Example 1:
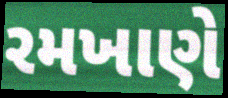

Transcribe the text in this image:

રમખાણે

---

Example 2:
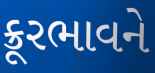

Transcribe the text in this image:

ક્રૂરભાવને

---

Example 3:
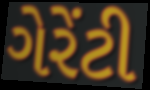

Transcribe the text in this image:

ગેરેંટી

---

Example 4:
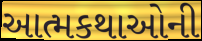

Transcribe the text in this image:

આત્મકથાઓની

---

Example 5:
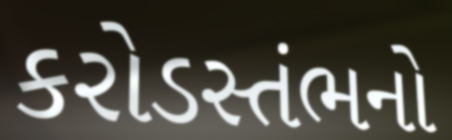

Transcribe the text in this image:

કરોડસ્તંભનો